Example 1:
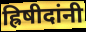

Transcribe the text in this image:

ह्रिषीदांनी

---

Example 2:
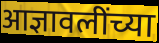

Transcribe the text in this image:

आज्ञावलींच्या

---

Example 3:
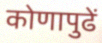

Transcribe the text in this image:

कोणापुढें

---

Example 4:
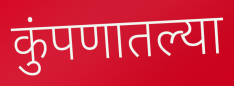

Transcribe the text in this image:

कुंपणातल्या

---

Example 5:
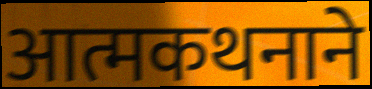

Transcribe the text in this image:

आत्मकथनाने